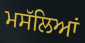
ਮਸੱਲਿਆਂ